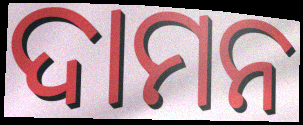
ଦାମନ